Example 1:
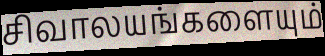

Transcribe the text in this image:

சிவாலயங்களையும்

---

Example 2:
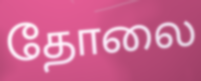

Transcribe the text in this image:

தோலை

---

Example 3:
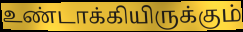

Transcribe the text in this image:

உண்டாக்கியிருக்கும்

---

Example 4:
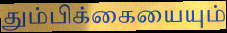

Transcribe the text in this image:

தும்பிக்கையையும்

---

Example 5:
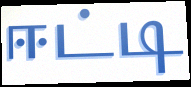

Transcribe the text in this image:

ஈட்டி